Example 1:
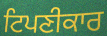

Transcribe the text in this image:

ਟਿਪਣੀਕਾਰ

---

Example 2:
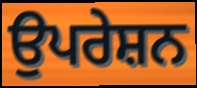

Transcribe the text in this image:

ਉਪਰੇਸ਼ਨ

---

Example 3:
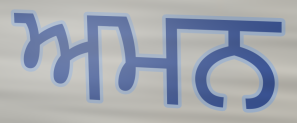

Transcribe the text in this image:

ਅਮਨ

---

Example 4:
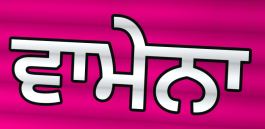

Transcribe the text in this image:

ਵਾਮੇਨਾ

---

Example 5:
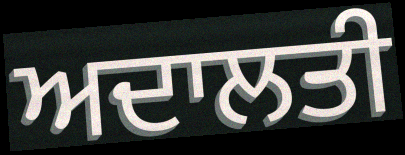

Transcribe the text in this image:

ਅਦਾਲਤੀ